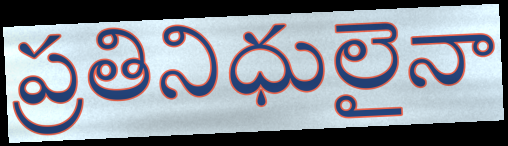
ప్రతినిధులైనా